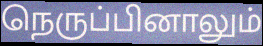
நெருப்பினாலும்